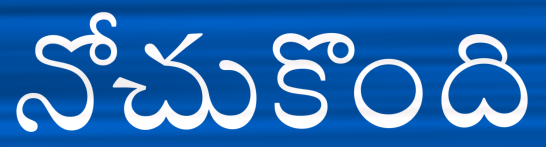
నోచుకొంది